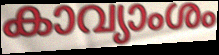
കാവ്യാംശം